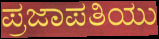
ಪ್ರಜಾಪತಿಯು